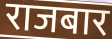
राजबार